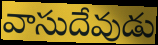
వాసుదేవుడు